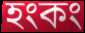
হংকং